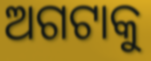
ଅଗଟାକୁ